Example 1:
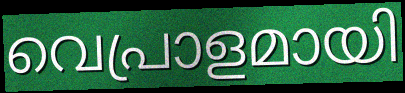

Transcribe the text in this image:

വെപ്രാളമായി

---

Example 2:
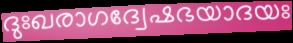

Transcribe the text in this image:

ദുഃഖരാഗദ്വേഷഭയാദയഃ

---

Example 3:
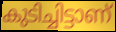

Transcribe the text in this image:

കുടിച്ചിട്ടാണ്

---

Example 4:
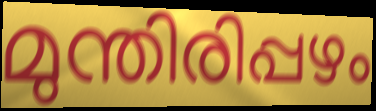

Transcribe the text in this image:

മുന്തിരിപ്പഴം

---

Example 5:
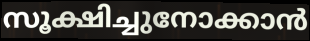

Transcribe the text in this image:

സൂക്ഷിച്ചുനോക്കാൻ